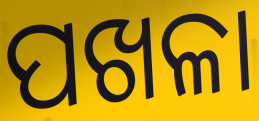
ପଖଳା